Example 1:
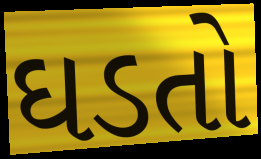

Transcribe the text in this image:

ઘડતો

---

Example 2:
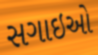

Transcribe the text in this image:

સગાઇઓ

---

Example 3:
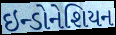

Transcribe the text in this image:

ઇન્ડોનેશિયન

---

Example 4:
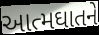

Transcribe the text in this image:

આત્મઘાતને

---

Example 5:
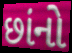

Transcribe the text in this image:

છાંનો